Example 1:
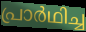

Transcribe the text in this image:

പ്രാർഥിച്ച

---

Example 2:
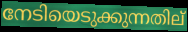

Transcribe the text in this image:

നേടിയെടുക്കുന്നതില്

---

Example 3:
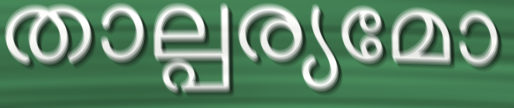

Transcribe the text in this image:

താല്പര്യമോ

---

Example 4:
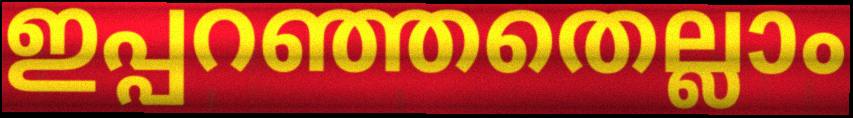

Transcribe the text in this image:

ഇപ്പറഞ്ഞതെല്ലാം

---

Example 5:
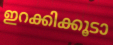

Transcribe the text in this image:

ഇറക്കിക്കൂടാ